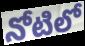
నోటిలో